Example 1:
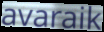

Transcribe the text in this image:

avaraik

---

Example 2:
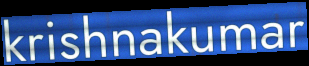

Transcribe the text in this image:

krishnakumar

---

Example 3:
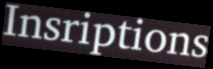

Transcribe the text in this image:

Insriptions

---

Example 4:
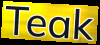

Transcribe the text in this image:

Teak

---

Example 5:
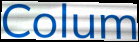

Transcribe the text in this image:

Colum